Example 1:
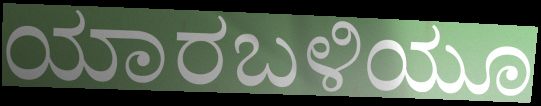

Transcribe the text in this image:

ಯಾರಬಳಿಯೂ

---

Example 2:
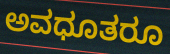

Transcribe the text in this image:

ಅವಧೂತರೂ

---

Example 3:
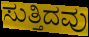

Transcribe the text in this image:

ಸುತ್ತಿದವು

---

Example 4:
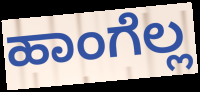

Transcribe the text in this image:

ಹಾಂಗೆಲ್ಲ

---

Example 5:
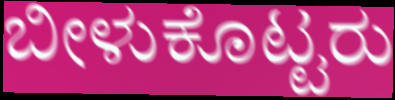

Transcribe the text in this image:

ಬೀಳುಕೊಟ್ಟರು